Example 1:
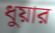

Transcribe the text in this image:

ধুয়ার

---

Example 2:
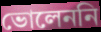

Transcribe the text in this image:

ভোলেননি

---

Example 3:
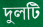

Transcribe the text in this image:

দুলটি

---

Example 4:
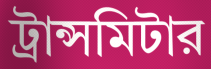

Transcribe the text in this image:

ট্রান্সমিটার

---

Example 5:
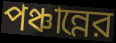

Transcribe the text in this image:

পঞ্চান্নের